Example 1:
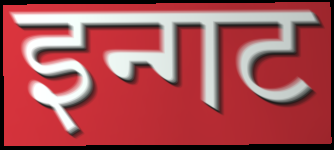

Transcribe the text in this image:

इन्गट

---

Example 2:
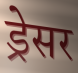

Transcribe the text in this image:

ड्रेसर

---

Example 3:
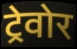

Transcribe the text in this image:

ट्रेवोर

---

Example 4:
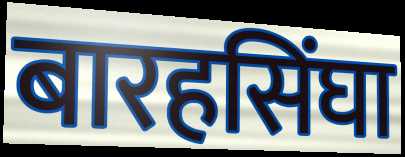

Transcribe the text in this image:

बारहसिंघा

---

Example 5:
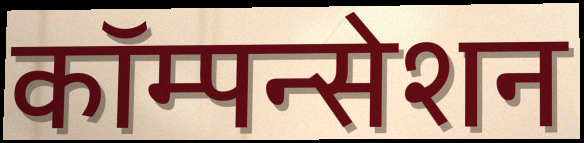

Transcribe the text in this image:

कॉम्पन्सेशन